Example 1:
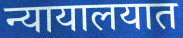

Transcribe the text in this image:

न्यायालयात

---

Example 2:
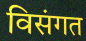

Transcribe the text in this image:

विसंगत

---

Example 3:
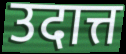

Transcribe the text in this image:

उदात्त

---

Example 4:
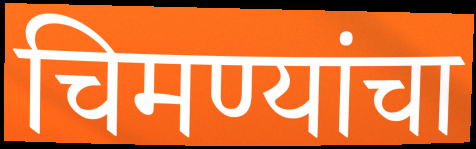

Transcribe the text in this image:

चिमण्यांचा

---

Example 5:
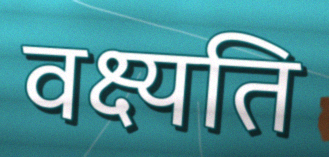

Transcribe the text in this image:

वक्ष्यति